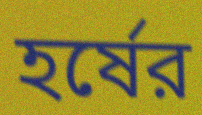
হর্ষের